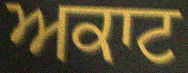
ਅਕਾਟ